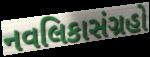
નવલિકાસંગ્રહો